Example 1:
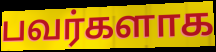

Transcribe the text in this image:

பவர்களாக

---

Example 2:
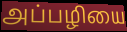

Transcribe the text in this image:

அப்பழியை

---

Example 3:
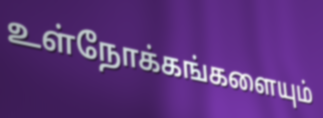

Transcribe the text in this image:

உள்நோக்கங்களையும்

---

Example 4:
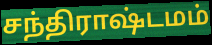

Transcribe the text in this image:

சந்திராஷ்டமம்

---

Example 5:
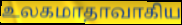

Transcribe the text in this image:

உலகமாதாவாகிய